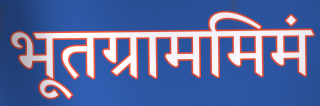
भूतग्राममिमं